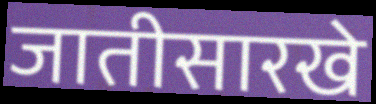
जातीसारखे